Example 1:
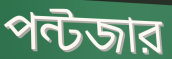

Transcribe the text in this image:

পন্টজার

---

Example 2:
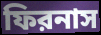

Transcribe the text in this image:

ফিরনাস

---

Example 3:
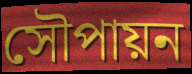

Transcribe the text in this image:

সৌপায়ন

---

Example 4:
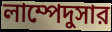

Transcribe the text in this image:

লাম্পেদুসার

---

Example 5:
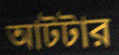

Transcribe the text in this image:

আটটার